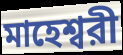
মাহেশ্বরী